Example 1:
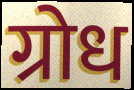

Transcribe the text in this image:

ग्रोध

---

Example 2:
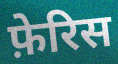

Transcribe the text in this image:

फ़ेरिस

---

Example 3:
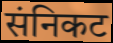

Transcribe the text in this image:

संनिकट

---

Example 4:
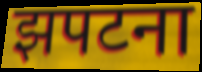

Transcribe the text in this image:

झपटना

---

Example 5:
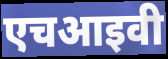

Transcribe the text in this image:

एचआइवी